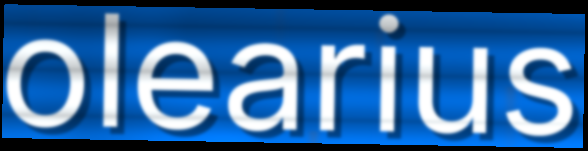
olearius